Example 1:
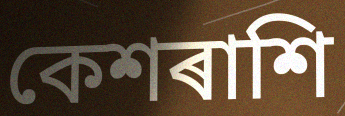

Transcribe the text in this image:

কেশৰাশি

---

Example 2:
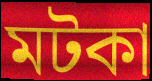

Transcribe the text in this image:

মটকা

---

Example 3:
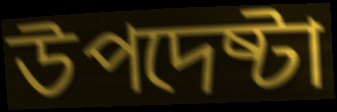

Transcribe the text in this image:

উপদেষ্টা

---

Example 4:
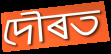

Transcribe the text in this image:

দৌৰত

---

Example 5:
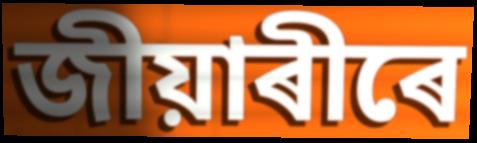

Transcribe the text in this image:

জীয়াৰীৰে